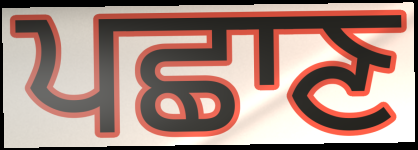
ਪਛਾਣ